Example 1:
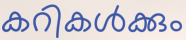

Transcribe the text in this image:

കറികൾക്കും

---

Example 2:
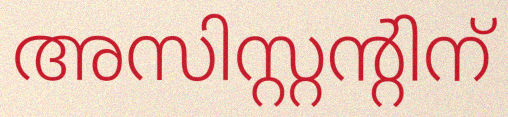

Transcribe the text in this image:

അസിസ്റ്റന്റിന്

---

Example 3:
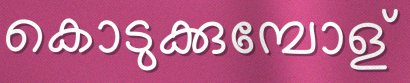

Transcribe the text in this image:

കൊടുക്കുമ്പോള്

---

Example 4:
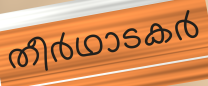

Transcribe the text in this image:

തീർഥാടകർ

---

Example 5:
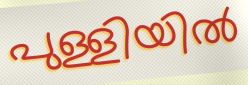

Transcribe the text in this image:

പുള്ളിയിൽ